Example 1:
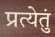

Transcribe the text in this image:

प्रत्येतुं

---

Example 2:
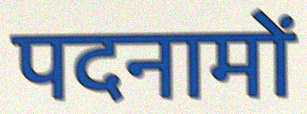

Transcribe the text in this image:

पदनामों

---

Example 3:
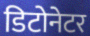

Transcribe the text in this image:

डिटोनेटर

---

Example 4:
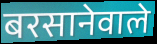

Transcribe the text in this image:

बरसानेवाले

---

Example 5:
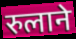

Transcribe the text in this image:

रुलाने